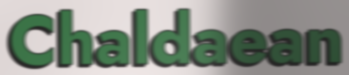
Chaldaean